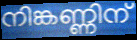
നിങ്കണ്ണിന്